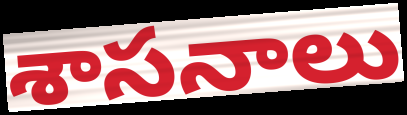
శాసనాలు